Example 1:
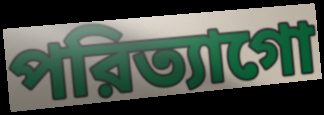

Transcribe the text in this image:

পরিত্যাগো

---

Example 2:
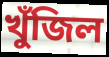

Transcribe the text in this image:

খুঁজিল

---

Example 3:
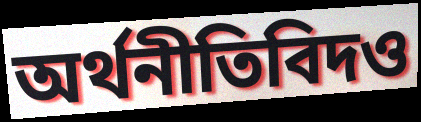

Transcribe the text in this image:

অর্থনীতিবিদও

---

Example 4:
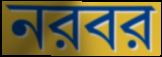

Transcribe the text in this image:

নরবর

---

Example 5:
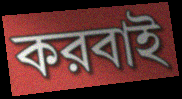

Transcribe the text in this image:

করবাই